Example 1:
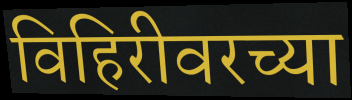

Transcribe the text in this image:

विहिरीवरच्या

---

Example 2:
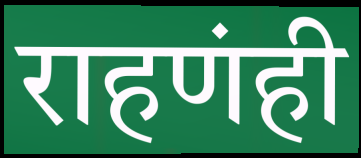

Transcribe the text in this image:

राहणंही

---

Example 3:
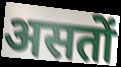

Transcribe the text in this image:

असतों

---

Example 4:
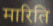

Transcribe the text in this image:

मारिति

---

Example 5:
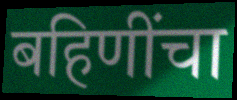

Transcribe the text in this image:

बहिणींचा